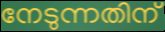
നേടുന്നതിന്